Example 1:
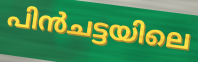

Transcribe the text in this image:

പിൻചട്ടയിലെ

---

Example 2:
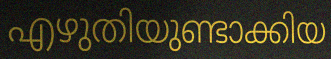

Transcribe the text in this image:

എഴുതിയുണ്ടാക്കിയ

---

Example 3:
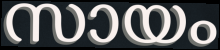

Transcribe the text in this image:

സായം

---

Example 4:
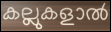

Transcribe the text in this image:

കല്ലുകളാൽ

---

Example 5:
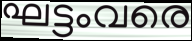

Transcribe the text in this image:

ഘട്ടംവരെ